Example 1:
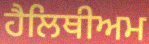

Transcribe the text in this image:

ਹੈਲਿਥੀਅਮ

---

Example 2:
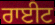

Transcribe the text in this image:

ਰਾਈਟ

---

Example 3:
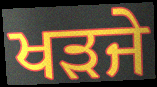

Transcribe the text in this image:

ਖੜਜੇ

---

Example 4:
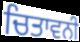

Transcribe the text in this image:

ਚਿਤਾਵਨੀ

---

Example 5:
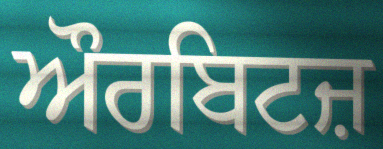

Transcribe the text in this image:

ਔਰਬਿਟਜ਼